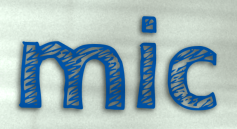
mic